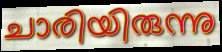
ചാരിയിരുന്നു